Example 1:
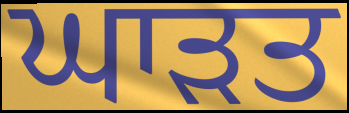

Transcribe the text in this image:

ਘਾੜਤ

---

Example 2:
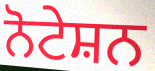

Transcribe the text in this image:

ਨੋਟੇਸ਼ਨ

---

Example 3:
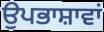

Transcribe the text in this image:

ਉਪਭਾਸ਼ਾਵਾਂ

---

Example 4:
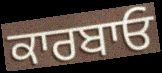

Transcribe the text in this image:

ਕਾਰਬਾਓ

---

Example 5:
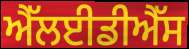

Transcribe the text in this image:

ਐੱਲਈਡੀਐੱਸ